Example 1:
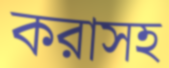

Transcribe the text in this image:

করাসহ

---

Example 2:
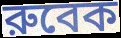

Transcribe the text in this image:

রুবেক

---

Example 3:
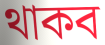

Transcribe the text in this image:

থাকব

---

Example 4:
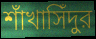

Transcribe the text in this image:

শাঁখাসিঁদুর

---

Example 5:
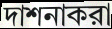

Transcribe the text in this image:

দাশনাকরা